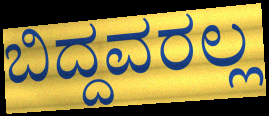
ಬಿದ್ದವರಲ್ಲ